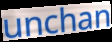
unchan